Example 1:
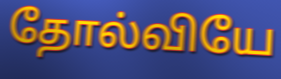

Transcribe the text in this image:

தோல்வியே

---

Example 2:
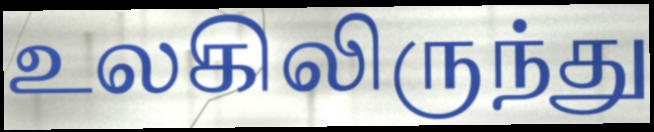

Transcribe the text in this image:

உலகிலிருந்து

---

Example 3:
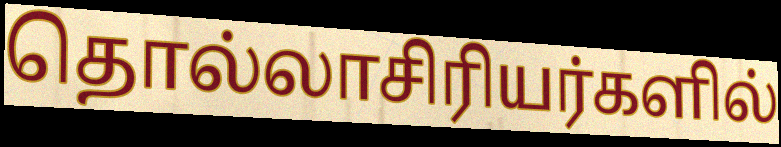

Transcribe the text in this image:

தொல்லாசிரியர்களில்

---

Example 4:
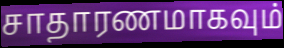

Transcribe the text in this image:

சாதாரணமாகவும்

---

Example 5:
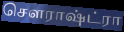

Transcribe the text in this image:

சௌராஷ்ட்ரா